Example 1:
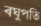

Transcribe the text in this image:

ৰঘুপতি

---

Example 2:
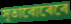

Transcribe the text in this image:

সূতাবোৰেৰে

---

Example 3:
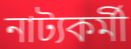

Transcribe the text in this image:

নাট্যকৰ্মী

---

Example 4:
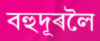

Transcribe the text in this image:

বহুদূৰলৈ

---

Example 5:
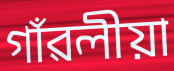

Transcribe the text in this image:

গাঁৱলীয়া